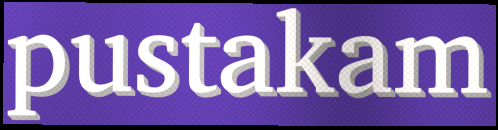
pustakam